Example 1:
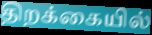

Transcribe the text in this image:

திறக்கையில்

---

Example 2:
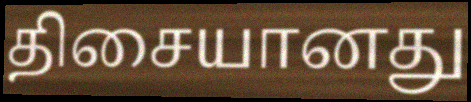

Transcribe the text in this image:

திசையானது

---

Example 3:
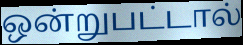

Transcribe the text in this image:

ஒன்றுபட்டால்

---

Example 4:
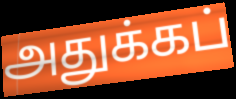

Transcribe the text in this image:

அதுக்கப்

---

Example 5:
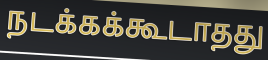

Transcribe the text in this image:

நடக்கக்கூடாதது